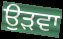
ਉੜਵਾ